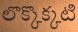
లొక్కొక్కటి